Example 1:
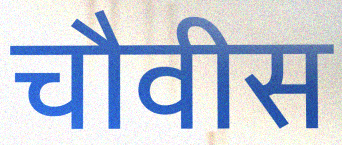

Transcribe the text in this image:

चौवीस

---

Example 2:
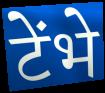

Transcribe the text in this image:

टेंभे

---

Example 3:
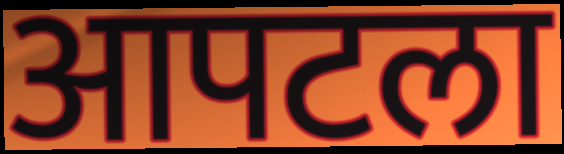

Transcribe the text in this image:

आपटला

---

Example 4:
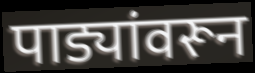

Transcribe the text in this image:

पाड्यांवरून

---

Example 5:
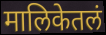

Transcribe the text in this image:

मालिकेतलं